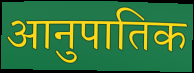
आनुपातिक